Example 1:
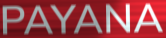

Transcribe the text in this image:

PAYANA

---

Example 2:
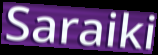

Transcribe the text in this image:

Saraiki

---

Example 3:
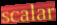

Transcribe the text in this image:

scalar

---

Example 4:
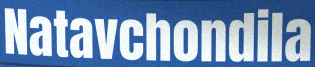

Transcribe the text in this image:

Natavchondila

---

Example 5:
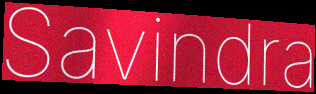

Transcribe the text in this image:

Savindra